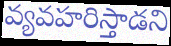
వ్యవహరిస్తాడని